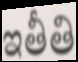
ఇతీతి